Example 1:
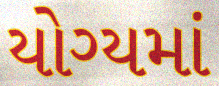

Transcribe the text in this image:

યોગ્યમાં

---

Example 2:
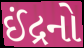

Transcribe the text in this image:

ઈંદ્રનો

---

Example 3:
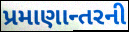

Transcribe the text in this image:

પ્રમાણાન્તરની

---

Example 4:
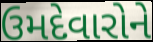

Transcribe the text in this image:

ઉમદેવારોને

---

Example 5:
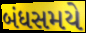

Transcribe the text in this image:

બંધસમયે